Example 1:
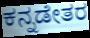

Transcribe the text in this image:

ಕನ್ನಡೇತರ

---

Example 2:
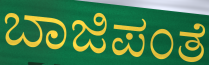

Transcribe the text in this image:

ಬಾಜಿಪಂತೆ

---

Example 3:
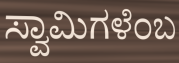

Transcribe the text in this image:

ಸ್ವಾಮಿಗಳೆಂಬ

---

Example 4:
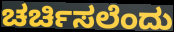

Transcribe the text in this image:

ಚರ್ಚಿಸಲೆಂದು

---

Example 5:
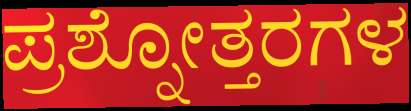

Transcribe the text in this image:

ಪ್ರಶ್ನೋತ್ತರಗಳ